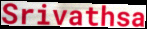
Srivathsa